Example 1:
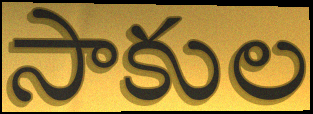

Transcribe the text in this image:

సాకుల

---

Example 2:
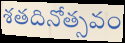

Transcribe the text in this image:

శతదినోత్సవం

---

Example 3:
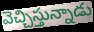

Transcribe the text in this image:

వెచ్చిస్తున్నాడు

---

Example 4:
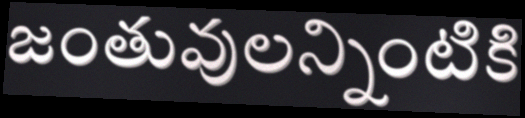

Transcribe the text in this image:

జంతువులన్నింటికి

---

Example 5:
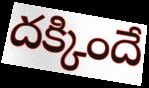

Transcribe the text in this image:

దక్కిందే